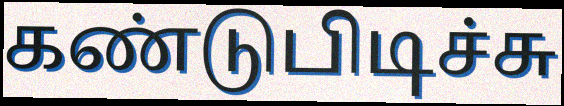
கண்டுபிடிச்சு